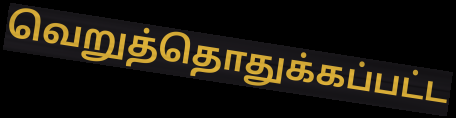
வெறுத்தொதுக்கப்பட்ட